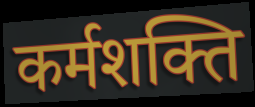
कर्मशक्ति